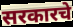
सरकारचे